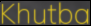
Khutba